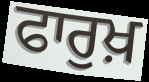
ਫਾਰੁਖ਼